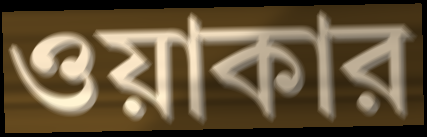
ওয়াকার